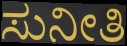
ಸುನೀತಿ